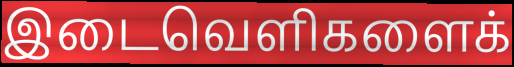
இடைவெளிகளைக்